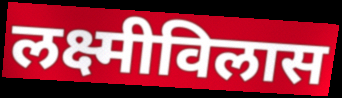
लक्ष्मीविलास